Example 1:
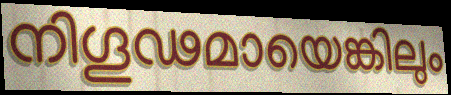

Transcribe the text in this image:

നിഗൂഢമായെങ്കിലും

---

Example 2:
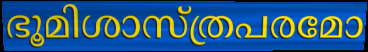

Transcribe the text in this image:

ഭൂമിശാസ്ത്രപരമോ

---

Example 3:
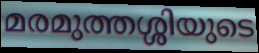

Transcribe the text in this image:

മരമുത്തശ്ശിയുടെ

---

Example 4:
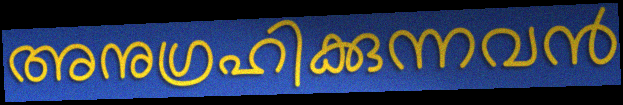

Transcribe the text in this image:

അനുഗ്രഹിക്കുന്നവൻ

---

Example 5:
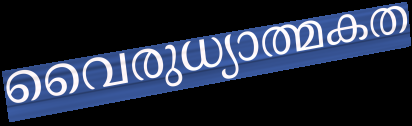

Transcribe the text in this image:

വൈരുധ്യാത്മകത